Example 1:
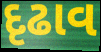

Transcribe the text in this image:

દૃઢાવ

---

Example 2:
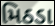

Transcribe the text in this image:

મિઠડા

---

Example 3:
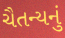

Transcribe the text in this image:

ચૈતન્યનું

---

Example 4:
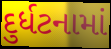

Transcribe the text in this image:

દુર્ધટનામાં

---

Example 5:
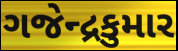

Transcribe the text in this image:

ગજેન્દ્રકુમાર